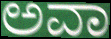
ಅವಾ